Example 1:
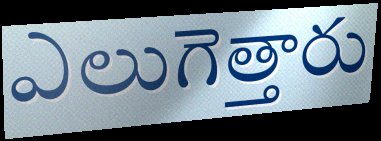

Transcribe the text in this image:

ఎలుగెత్తారు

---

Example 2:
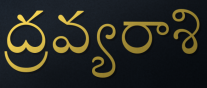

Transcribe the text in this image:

ద్రవ్యరాశి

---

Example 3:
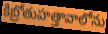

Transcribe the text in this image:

కిబ్రోతుహత్తావాలోను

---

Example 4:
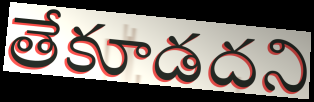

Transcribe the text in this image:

తేకూడదని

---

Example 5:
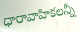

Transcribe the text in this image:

ధారావాహికలన్నీ